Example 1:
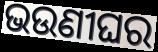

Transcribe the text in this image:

ଭଉଣୀଘର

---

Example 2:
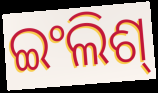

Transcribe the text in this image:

ଇଂଲିଶ୍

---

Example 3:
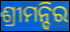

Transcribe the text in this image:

ଶ୍ରୀମନ୍ଦିର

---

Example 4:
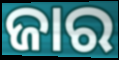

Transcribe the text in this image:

ଜାର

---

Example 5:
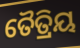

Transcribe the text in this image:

ତୈତ୍ରିୟ